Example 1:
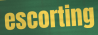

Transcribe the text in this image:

escorting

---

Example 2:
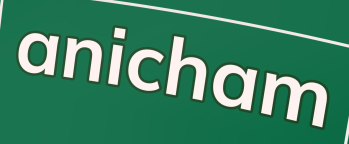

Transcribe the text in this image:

anicham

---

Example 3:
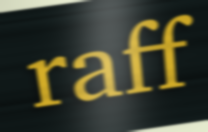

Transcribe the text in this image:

raff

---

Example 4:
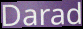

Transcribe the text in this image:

Darad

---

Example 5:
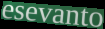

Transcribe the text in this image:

esevanto